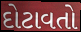
દોટાવતો